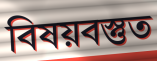
বিষয়বস্তুত